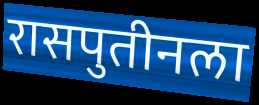
रासपुतीनला